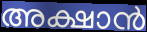
അക്ഷാൻ